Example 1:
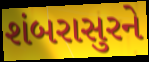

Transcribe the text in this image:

શંબરાસુરને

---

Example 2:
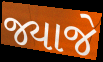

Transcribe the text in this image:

જ્યાજે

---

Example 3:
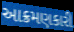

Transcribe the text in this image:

આક્રમણકારી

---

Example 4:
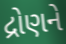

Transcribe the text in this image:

દ્રોણને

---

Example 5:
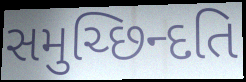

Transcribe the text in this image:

સમુચ્છિન્દતિ